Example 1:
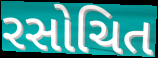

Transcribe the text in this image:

રસોચિત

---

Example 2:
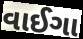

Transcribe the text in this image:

વાઈગા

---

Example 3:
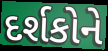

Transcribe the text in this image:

દર્શકોને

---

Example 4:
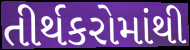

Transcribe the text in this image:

તીર્થકરોમાંથી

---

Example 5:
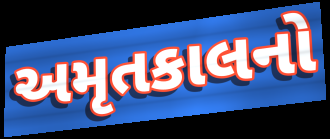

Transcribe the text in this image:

અમૃતકાલનો